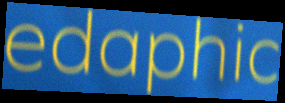
edaphic